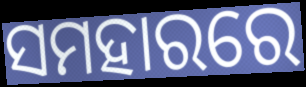
ସମହାରରେ